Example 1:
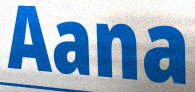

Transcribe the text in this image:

Aana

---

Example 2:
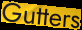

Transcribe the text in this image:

Gutters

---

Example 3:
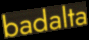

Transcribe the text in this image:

badalta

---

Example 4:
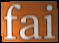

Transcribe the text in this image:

fai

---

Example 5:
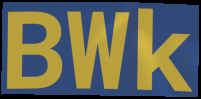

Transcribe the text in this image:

BWk